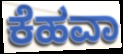
ಕೆಹವಾ